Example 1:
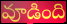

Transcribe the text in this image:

వూడింది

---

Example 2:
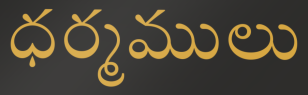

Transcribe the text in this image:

ధర్మములు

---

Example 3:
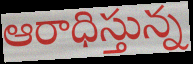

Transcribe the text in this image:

ఆరాధిస్తున్న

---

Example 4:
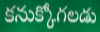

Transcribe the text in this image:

కనుక్కోగలడు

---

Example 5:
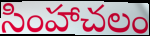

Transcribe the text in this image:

సింహాచలం